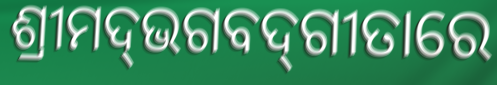
ଶ୍ରୀମଦ୍‌ଭଗବଦ୍‌ଗୀତାରେ